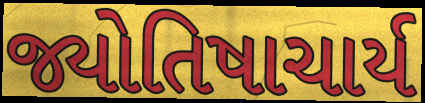
જ્યોતિષાચાર્ય